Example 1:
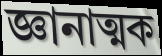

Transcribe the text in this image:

জ্ঞানাত্মক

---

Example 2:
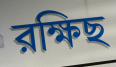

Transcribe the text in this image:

রক্ষিছ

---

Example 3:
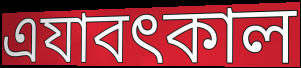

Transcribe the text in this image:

এযাবৎকাল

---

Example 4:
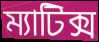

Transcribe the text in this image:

ম্যাটিক্স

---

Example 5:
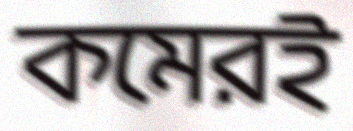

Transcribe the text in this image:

কমেরই